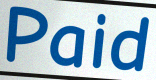
Paid